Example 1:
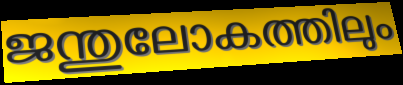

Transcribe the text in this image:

ജന്തുലോകത്തിലും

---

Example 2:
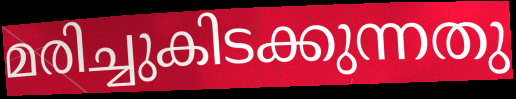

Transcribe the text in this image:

മരിച്ചുകിടക്കുന്നതു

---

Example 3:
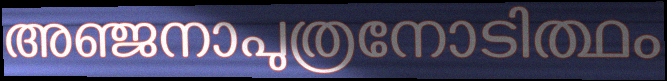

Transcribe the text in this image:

അഞ്ജനാപുത്രനോടിത്ഥം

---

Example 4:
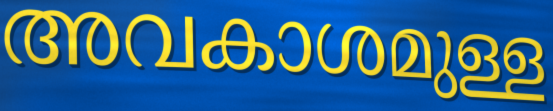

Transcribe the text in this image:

അവകാശമുള്ള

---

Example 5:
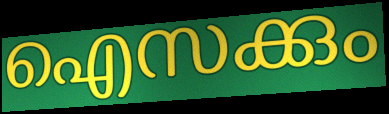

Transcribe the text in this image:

ഐസക്കും